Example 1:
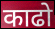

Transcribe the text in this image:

काढो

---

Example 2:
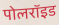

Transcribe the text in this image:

पोलरॉइड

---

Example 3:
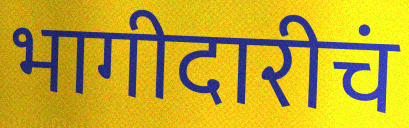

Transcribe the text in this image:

भागीदारीचं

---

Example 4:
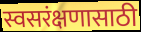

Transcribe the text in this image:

स्वसरंक्षणासाठी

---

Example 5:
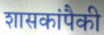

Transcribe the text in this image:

शासकांपैकी